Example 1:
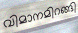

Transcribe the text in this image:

വിമാനമിറങ്ങി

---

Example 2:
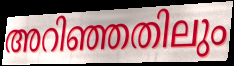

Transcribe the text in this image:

അറിഞ്ഞതിലും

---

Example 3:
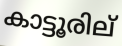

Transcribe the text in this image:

കാട്ടൂരില്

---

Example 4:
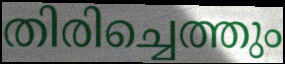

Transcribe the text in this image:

തിരിച്ചെത്തും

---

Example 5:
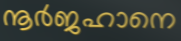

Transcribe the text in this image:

നൂർജഹാനെ